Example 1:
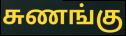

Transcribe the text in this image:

சுணங்கு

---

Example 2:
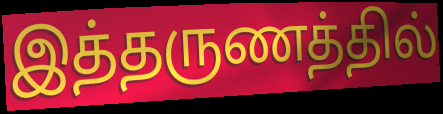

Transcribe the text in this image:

இத்தருணத்தில்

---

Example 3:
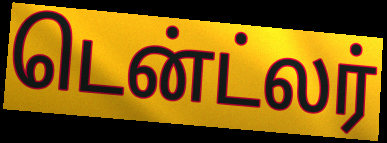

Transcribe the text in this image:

டென்ட்லர்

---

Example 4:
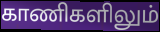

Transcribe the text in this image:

காணிகளிலும்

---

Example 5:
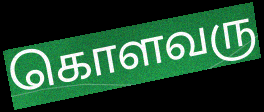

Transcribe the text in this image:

கொளவரு